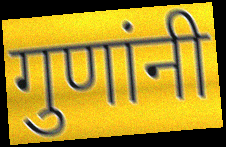
गुणांनी